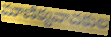
మాణిక్యవాచకుల